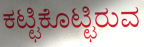
ಕಟ್ಟಿಕೊಟ್ಟಿರುವ